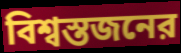
বিশ্বস্তজনের